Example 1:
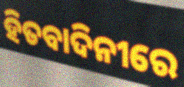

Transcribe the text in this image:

ହିତବାଦିନୀରେ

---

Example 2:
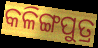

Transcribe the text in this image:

କଳିଙ୍ଗପୁତ୍ର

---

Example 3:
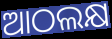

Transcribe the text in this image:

ଆଠଲକ୍ଷ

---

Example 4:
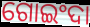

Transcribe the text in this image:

ଗୋଇଂଦା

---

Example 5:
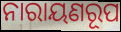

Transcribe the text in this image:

ନାରାୟଣରୂପ